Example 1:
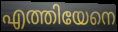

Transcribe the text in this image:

എത്തിയേനെ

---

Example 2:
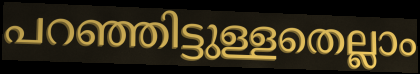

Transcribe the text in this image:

പറഞ്ഞിട്ടുള്ളതെല്ലാം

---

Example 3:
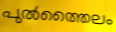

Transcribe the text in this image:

പുൽത്തൈലം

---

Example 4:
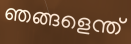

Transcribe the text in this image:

ഞങ്ങളെന്ത്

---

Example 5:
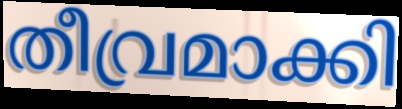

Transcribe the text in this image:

തീവ്രമാക്കി